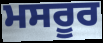
ਮਸਰੂਰ